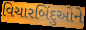
વિચારબિંદુઓને